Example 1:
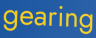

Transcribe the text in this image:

gearing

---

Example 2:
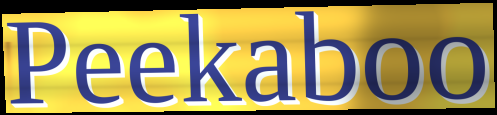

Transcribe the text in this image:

Peekaboo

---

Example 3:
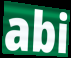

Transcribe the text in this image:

abi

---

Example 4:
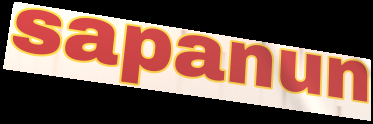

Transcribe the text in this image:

sapanun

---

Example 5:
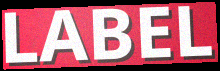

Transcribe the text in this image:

LABEL